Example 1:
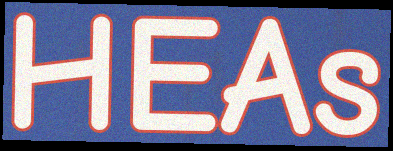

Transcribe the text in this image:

HEAs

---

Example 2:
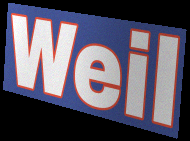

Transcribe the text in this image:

Weil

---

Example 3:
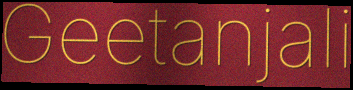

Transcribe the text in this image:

Geetanjali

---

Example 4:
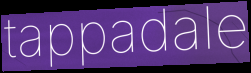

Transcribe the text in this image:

tappadale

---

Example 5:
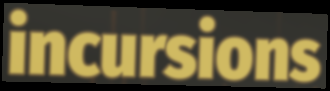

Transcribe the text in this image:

incursions